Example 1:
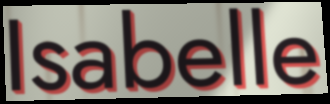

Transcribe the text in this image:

Isabelle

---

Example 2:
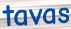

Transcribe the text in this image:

tavas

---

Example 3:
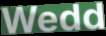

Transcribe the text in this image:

Wedd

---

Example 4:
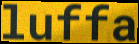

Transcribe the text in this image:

luffa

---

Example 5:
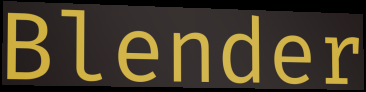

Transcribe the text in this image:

Blender